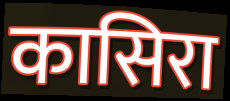
कासिरा